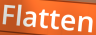
Flatten